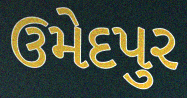
ઉમેદપુર